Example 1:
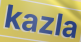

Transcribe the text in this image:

kazla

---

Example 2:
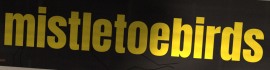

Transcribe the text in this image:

mistletoebirds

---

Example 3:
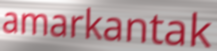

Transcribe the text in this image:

amarkantak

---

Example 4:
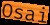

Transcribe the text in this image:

Osai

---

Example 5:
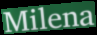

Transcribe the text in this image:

Milena